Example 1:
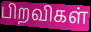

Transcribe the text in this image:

பிறவிகள்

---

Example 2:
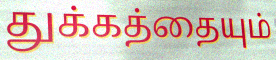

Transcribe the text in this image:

துக்கத்தையும்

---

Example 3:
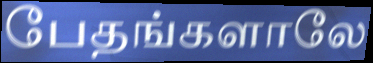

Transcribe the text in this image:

பேதங்களாலே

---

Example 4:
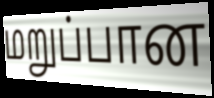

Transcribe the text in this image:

மறுப்பான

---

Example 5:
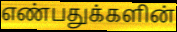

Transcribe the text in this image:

எண்பதுக்களின்